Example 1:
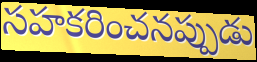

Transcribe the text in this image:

సహకరించనప్పుడు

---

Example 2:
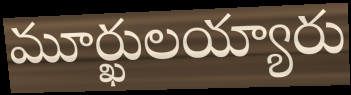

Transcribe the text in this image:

మూర్ఖులయ్యారు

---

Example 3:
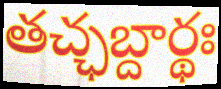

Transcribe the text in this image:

తచ్ఛబ్దార్థః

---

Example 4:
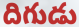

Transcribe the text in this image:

దిగుడు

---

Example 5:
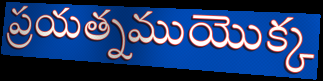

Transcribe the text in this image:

ప్రయత్నముయొక్క